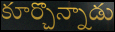
కూర్చొన్నాడు